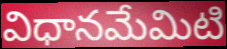
విధానమేమిటి